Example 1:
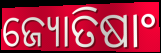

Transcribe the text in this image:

ଜ୍ୟୋତିଷାଂ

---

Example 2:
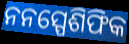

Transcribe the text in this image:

ନନସ୍ପେଶିଫିକ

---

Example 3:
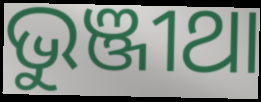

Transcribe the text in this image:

ଭୁଞ୍ଜୀଥା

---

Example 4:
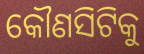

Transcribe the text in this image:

କୌଣସିଟିକୁ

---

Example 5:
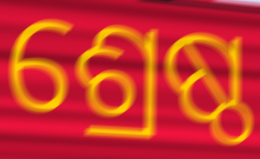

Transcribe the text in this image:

ଶ୍ରେଷ୍ଠ